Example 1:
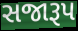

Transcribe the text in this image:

સજારૂપ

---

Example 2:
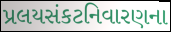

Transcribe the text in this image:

પ્રલયસંકટનિવારણના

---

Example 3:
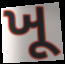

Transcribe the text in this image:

ખૂ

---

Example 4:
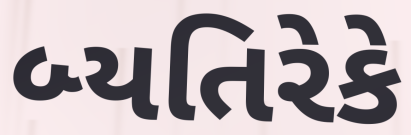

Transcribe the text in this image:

બ્યતિરેકે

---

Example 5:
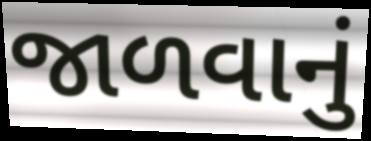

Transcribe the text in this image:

જાળવાનું